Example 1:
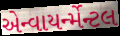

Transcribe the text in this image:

એન્વાયર્ન્મેન્ટલ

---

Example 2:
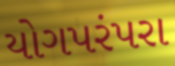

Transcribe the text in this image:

યોગપરંપરા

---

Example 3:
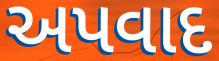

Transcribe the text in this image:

અપવાદ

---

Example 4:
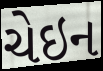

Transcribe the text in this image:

ચેઇન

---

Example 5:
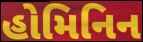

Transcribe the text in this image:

હોમિનિન